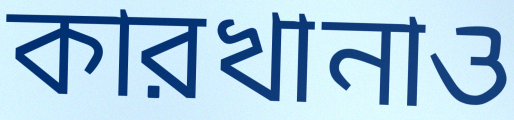
কারখানাও